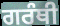
ਗਰੰਥੀ